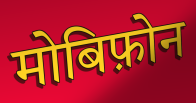
मोबिफ़ोन